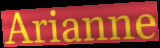
Arianne